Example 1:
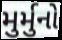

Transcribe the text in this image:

મુર્મુનો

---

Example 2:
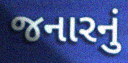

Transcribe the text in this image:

જનારનું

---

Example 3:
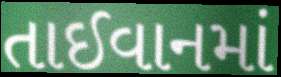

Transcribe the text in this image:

તાઈવાનમાં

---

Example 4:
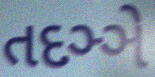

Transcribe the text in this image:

તદઞ્ઞે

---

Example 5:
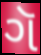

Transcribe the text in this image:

ગૅ